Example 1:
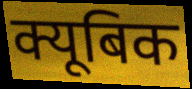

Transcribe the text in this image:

क्यूबिक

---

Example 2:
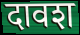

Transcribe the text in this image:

दावश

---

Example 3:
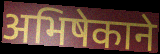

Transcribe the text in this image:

अभिषेकाने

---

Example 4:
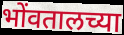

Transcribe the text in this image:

भोंवतालच्या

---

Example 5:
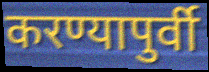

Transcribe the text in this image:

करण्यापुर्वी